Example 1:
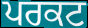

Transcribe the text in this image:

ਪਰਕਟ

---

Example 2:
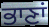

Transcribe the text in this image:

ਭਾਣਾਂ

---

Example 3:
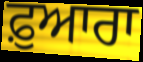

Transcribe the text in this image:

ਫ਼ੁਆਰਾ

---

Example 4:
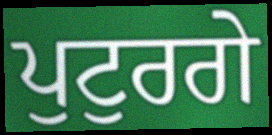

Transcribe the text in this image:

ਪੁਟੁਰਗੇ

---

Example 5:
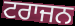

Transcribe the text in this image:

ਟਰਾਜਨ